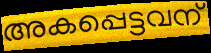
അകപ്പെട്ടവന്